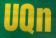
UQn